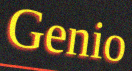
Genio